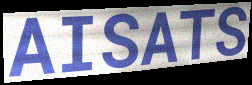
AISATS